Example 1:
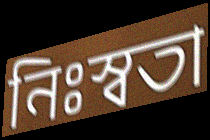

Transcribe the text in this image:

নিঃস্বতা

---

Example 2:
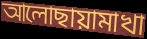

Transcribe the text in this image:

আলোছায়ামাখা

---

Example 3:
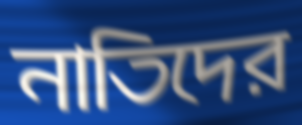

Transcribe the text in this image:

নাতিদের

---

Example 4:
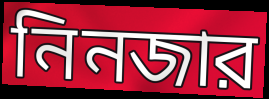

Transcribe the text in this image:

নিনজার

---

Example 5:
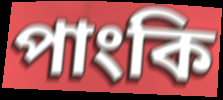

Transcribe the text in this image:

পাংকি